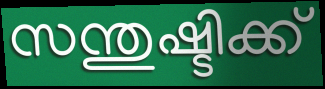
സന്തുഷ്ടിക്ക്